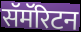
सॅमॅरिटन